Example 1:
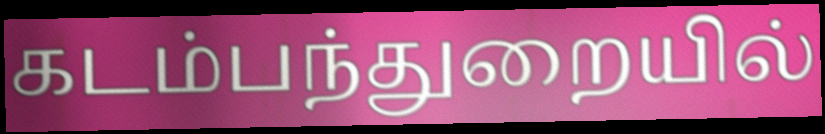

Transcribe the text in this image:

கடம்பந்துறையில்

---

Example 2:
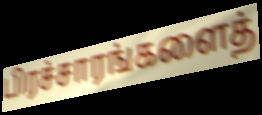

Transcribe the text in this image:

பிரச்சாரங்களைத்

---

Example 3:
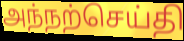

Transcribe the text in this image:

அந்நற்செய்தி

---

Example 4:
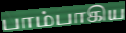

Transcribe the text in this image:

பாம்பாகிய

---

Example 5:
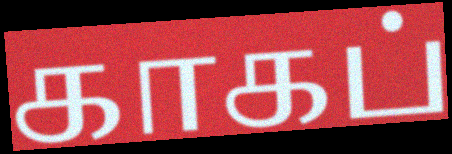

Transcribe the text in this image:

காகப்